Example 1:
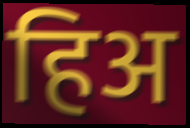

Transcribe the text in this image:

हिअ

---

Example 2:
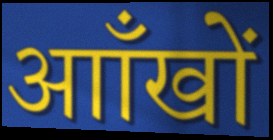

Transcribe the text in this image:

आाँखों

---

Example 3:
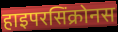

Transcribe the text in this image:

हाइपरसिंक्रोनस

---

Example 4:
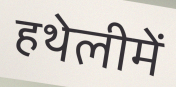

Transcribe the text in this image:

हथेलीमें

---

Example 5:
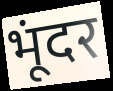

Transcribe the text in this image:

भूंदर